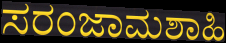
ಸರಂಜಾಮಶಾಹಿ